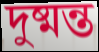
দুষ্মন্ত